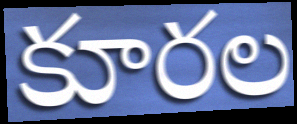
కూరల